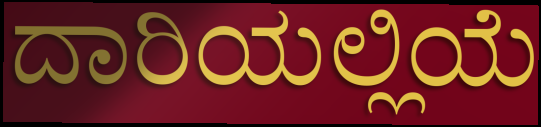
ದಾರಿಯಲ್ಲಿಯೆ